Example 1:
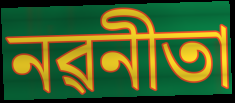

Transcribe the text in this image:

নৱনীতা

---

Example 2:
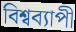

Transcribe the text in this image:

বিশ্বব্যাপী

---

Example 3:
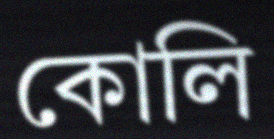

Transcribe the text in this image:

কোলি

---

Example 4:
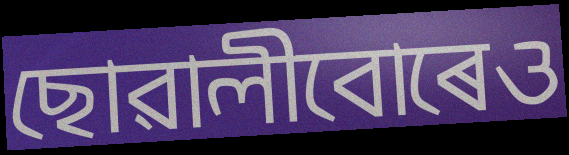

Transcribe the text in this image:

ছোৱালীবোৰেও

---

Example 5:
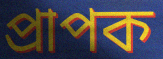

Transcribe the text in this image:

প্ৰাপক